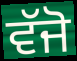
ਵੱਜੋ